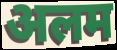
अलम